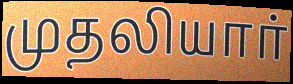
முதலியார்